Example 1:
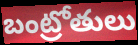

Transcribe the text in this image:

బంట్రోతులు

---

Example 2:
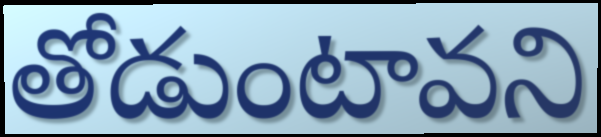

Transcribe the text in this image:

తోడుంటావని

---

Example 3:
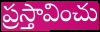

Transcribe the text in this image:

ప్రస్తావించు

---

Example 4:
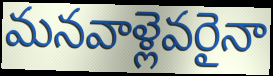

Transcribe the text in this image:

మనవాళ్లెవరైనా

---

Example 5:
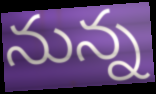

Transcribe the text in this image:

నున్న